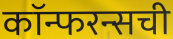
कॉन्फरन्सची